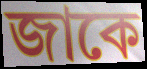
জাকে